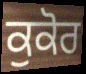
ਕੁਕੋਰ